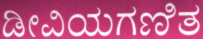
ಡೀವಿಯಗಣಿತ